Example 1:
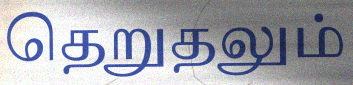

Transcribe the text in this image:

தெறுதலும்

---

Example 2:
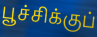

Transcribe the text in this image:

பூச்சிக்குப்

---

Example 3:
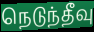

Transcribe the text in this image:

நெடுந்தீவு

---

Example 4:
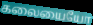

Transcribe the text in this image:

கலையையோ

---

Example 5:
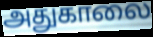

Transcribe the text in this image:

அதுகாலை